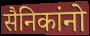
सैनिकांनो